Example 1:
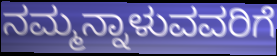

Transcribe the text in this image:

ನಮ್ಮನ್ನಾಳುವವರಿಗೆ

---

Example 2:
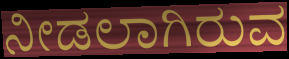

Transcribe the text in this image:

ನೀಡಲಾಗಿರುವ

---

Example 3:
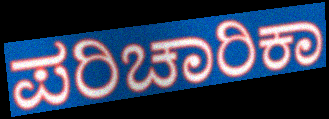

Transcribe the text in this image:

ಪರಿಚಾರಿಕಾ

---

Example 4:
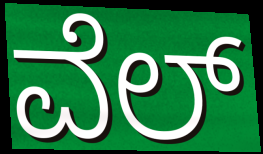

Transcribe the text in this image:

ವೆಲ್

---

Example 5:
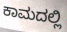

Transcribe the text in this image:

ಕಾಮದಲ್ಲಿ